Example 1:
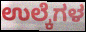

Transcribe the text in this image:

ಉಲ್ಕೆಗಳ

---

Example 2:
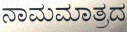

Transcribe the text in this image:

ನಾಮಮಾತ್ರದ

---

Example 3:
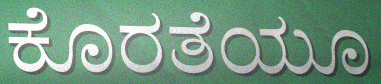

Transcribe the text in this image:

ಕೊರತೆಯೂ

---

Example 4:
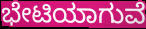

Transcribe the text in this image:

ಭೇಟಿಯಾಗುವೆ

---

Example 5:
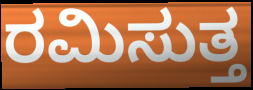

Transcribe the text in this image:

ರಮಿಸುತ್ತ